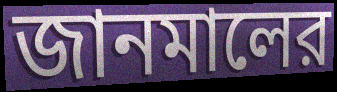
জানমালের